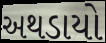
અથડાયો